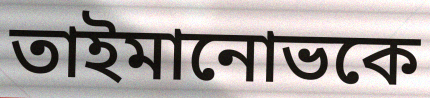
তাইমানোভকে